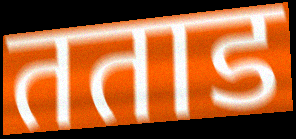
तताड